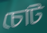
চোট